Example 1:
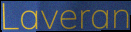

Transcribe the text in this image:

Laveran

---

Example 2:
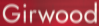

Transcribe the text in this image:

Girwood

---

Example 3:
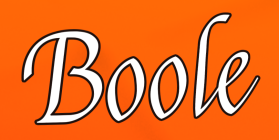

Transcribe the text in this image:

Boole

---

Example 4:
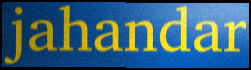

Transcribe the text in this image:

jahandar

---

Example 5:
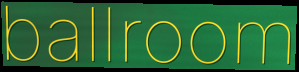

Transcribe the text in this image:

ballroom